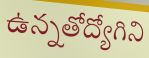
ఉన్నతోద్యోగిని